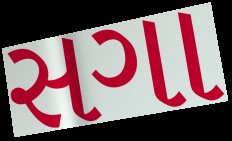
સગા